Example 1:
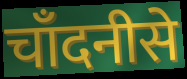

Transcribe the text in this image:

चाँदनीसे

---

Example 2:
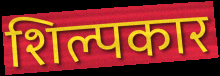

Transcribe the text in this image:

शिल्पकार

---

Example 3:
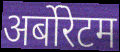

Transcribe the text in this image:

अर्बोरेटम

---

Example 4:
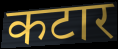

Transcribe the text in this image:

कटार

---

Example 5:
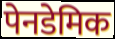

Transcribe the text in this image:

पेनडेमिक